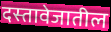
दस्तावेजातील